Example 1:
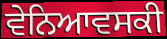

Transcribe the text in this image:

ਵੇਨਿਆਵਸਕੀ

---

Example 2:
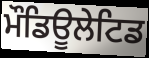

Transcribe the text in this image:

ਮੌਡਿਊਲੇਟਿਡ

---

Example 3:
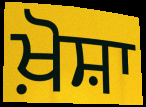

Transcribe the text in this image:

ਖ਼ੋਸ਼ਾ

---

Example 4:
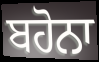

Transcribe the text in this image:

ਬਹੋਨਾ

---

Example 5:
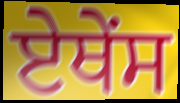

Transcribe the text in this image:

ਏਥੇਂਸ